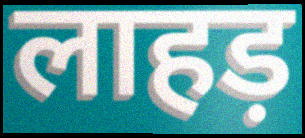
लाहड़